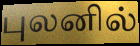
புலனில்